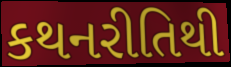
કથનરીતિથી